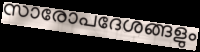
സാരോപദേശങ്ങളും